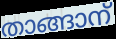
താങ്ങാന്